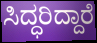
ಸಿದ್ಧರಿದ್ದಾರೆ